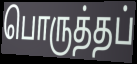
பொருத்தப்